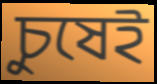
চুষেই